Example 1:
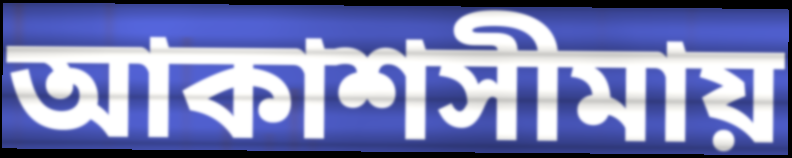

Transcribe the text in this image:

আকাশসীমায়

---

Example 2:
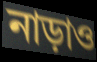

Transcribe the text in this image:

নাড়াও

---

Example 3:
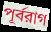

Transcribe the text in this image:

পূর্বরাগ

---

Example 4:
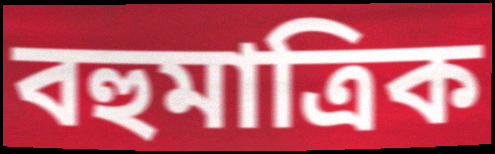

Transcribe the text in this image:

বহুমাত্রিক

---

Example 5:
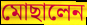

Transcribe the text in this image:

মোছালেন